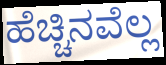
ಹೆಚ್ಚಿನವೆಲ್ಲ